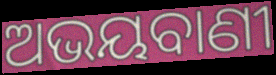
ଅଭୟବାଣୀ